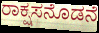
ರಾಕ್ಷಸನೊಡನೆ